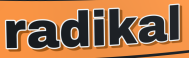
radikal